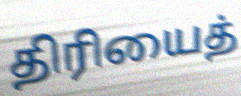
திரியைத்